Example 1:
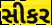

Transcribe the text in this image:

સીકર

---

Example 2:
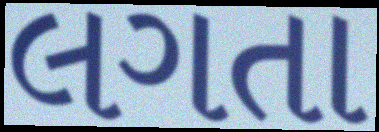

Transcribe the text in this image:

લગતા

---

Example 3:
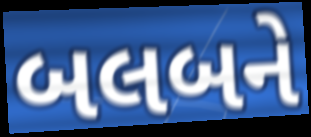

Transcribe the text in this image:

બલબને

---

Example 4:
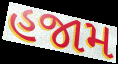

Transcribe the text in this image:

હજામ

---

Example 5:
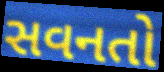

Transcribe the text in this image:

સવનતો